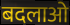
बदलाओ